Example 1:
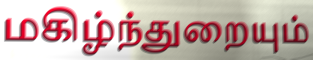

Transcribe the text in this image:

மகிழ்ந்துறையும்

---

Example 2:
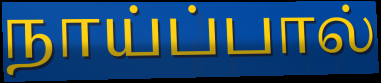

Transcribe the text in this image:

நாய்ப்பால்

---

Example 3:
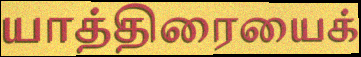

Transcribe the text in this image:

யாத்திரையைக்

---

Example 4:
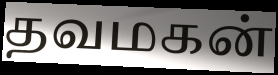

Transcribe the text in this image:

தவமகன்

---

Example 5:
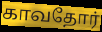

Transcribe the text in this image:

காவதோர்